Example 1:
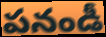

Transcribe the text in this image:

పనండీ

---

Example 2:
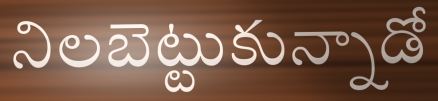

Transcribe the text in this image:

నిలబెట్టుకున్నాడో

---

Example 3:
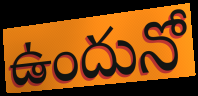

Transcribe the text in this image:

ఉందునో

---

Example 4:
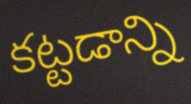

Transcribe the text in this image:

కట్టడాన్ని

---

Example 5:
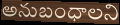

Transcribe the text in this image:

అనుబంధాలని